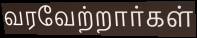
வரவேற்றார்கள்